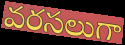
వరసలుగా